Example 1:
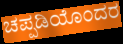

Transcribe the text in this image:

ಚಪ್ಪಡಿಯೊಂದರ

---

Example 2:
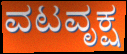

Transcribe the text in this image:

ವಟವೃಕ್ಷ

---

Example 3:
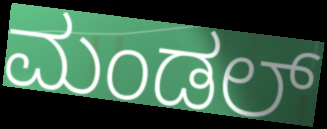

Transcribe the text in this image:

ಮಂಡಲ್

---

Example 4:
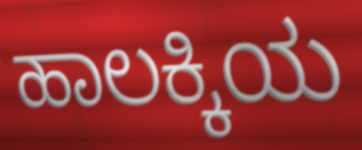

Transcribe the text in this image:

ಹಾಲಕ್ಕಿಯ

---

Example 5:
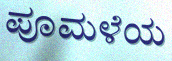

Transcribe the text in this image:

ಪೂಮಳೆಯ